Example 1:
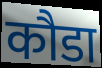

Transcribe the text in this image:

कौडा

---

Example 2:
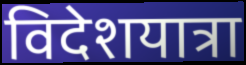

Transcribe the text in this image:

विदेशयात्रा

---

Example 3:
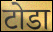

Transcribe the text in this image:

टोडा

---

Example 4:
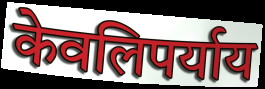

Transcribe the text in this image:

केवलिपर्याय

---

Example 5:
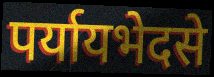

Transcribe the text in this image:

पर्यायभेदसे